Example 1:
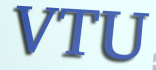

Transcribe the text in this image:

VTU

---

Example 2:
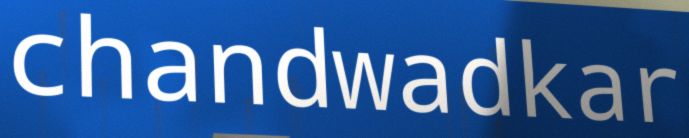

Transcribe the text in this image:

chandwadkar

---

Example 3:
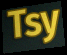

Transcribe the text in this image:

Tsy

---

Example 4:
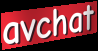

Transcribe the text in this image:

avchat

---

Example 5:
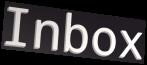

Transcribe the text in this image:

Inbox